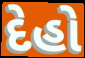
દેહો